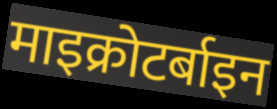
माइक्रोटर्बाइन